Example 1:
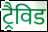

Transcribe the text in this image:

ट्रैविड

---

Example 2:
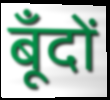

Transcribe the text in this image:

बूँदों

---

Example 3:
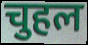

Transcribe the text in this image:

चुहल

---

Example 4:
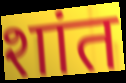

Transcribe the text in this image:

शांत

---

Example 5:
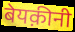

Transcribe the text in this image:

बेयक़ीनी